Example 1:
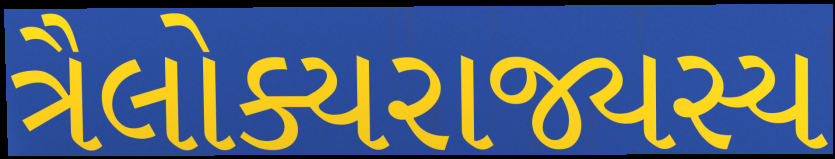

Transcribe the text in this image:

ત્રૈલોક્યરાજ્યસ્ય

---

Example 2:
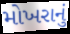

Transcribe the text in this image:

મોખરાનું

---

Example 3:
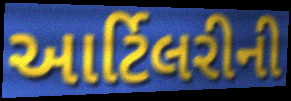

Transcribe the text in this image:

આર્ટિલરીની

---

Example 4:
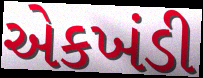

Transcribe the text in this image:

એકખંડી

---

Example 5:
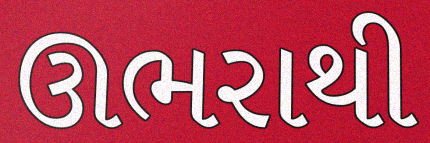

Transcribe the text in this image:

ઊભરાથી